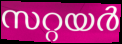
സറ്റയർ